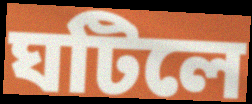
ঘটিলে